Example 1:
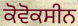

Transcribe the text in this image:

ਕੋਵੋਕਸੀਨ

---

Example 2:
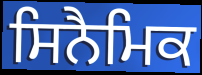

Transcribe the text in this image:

ਸਿਨੈਮਿਕ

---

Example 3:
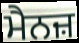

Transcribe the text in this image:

ਮੈਨਜ਼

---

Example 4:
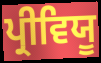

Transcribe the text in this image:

ਪ੍ਰੀਵਿਯੂ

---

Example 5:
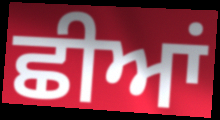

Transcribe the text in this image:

ਛੀਆਂ